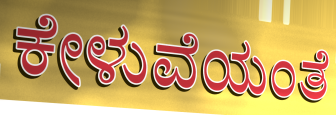
ಕೇಳುವೆಯಂತೆ